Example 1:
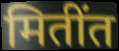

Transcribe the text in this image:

मितींत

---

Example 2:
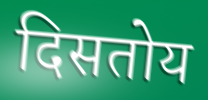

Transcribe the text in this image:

दिसतोय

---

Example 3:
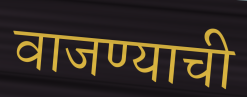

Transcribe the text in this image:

वाजण्याची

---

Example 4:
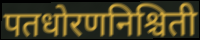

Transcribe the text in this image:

पतधोरणनिश्चिती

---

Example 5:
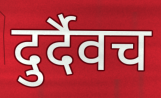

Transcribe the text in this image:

दुर्दैवच